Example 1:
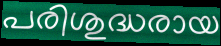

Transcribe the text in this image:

പരിശുദ്ധരായ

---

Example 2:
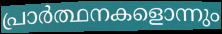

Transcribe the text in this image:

പ്രാർത്ഥനകളൊന്നും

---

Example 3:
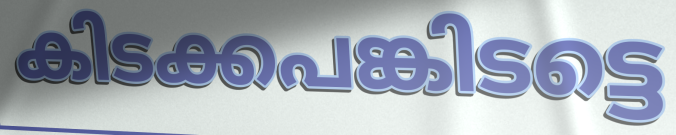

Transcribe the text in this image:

കിടക്കപങ്കിടട്ടെ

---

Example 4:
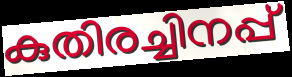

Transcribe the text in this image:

കുതിരച്ചിനപ്പ്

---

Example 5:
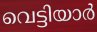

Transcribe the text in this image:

വെട്ടിയാർ